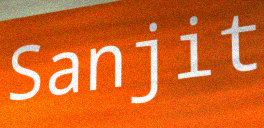
Sanjit